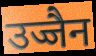
उज्जैन